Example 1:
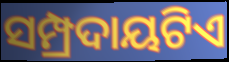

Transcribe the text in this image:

ସମ୍ପ୍ରଦାୟଟିଏ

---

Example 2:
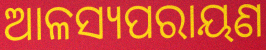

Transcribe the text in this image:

ଆଳସ୍ୟପରାୟଣ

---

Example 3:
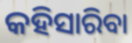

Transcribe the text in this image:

କହିସାରିବା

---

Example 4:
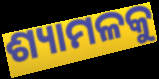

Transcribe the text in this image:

ଶ୍ୟାମଳକୁ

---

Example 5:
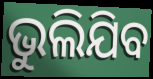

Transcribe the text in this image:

ଭୁଲିଯିବ